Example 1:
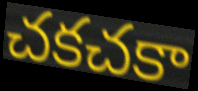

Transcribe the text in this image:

చకచకా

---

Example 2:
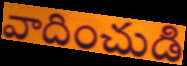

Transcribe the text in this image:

వాదించుడి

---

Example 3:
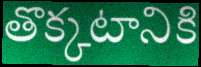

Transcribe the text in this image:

తొక్కటానికి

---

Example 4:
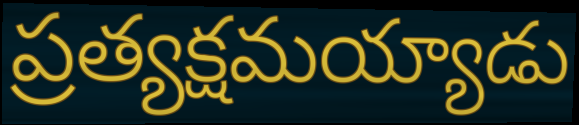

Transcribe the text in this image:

ప్రత్యక్షమయ్యాడు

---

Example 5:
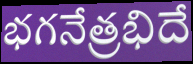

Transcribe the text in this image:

భగనేత్రభిదే